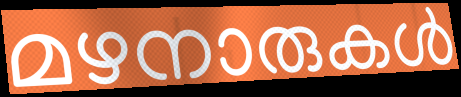
മഴനാരുകൾ